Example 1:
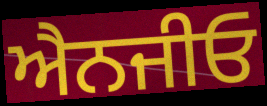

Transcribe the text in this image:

ਐਨਜੀਓ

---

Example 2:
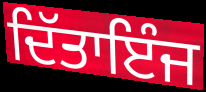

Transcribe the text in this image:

ਦਿੱਤਾਇੰਜ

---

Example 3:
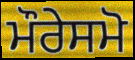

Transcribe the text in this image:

ਮੌਰੇਸਮੋ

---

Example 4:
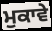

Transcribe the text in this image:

ਮੁਕਾਵੇ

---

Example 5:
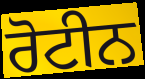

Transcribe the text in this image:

ਰੋਟੀਨ